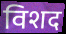
विशद